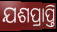
ଯଶପ୍ରାପ୍ତି